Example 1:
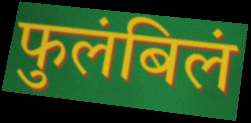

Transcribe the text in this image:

फुलंबिलं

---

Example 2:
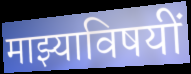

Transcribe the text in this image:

माझ्याविषयीं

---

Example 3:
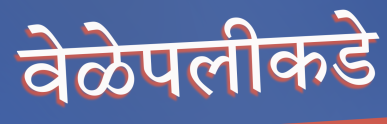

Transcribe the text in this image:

वेळेपलीकडे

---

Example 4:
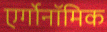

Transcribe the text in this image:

एर्गोनॉमिक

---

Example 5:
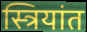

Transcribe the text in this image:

स्त्रियांत